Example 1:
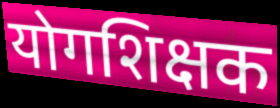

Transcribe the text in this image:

योगशिक्षक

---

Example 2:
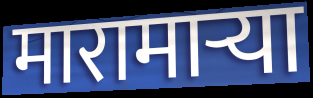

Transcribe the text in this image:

मारामाऱ्या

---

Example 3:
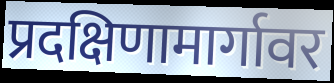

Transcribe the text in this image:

प्रदक्षिणामार्गावर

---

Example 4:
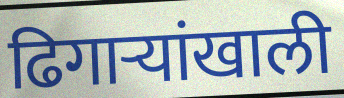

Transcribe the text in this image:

ढिगाऱ्यांखाली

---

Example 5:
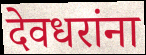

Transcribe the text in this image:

देवधरांना